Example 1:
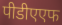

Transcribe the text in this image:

पीडीएएफ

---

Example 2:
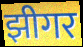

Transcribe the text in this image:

झीगर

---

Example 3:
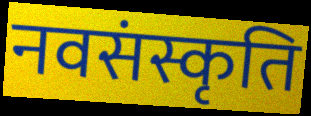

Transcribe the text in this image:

नवसंस्कृति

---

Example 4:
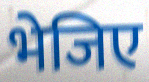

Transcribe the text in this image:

भेजिए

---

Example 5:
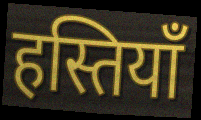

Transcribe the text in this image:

हस्तियॉं